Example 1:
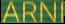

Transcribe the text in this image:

ARNI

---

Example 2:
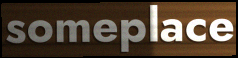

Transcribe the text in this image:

someplace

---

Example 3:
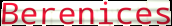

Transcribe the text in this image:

Berenices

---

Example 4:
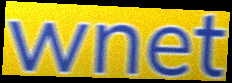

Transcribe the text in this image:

wnet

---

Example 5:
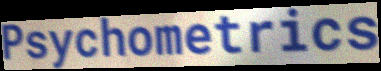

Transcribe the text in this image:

Psychometrics